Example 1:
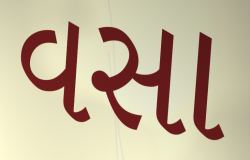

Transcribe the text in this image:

વસા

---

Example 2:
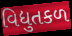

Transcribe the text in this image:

વિદ્યુતકળ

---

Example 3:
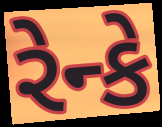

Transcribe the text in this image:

રેન્કે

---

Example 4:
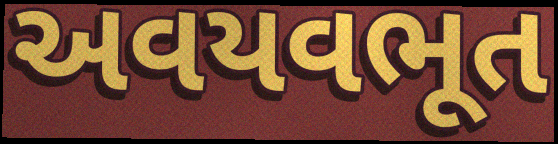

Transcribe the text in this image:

અવયવભૂત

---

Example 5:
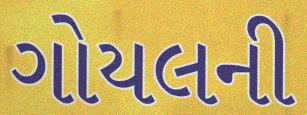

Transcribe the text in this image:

ગોયલની